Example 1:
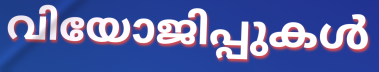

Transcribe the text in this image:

വിയോജിപ്പുകൾ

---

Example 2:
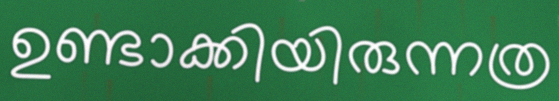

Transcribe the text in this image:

ഉണ്ടാക്കിയിരുന്നത്ര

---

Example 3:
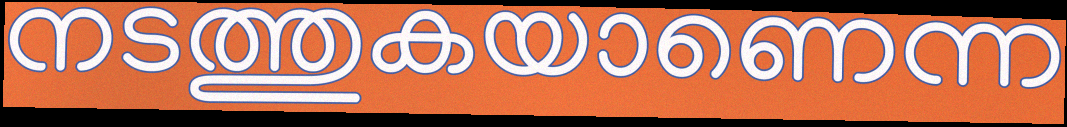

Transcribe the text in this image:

നടത്തുകയാണെന്ന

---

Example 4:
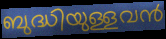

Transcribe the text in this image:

ബുദ്ധിയുള്ളവൻ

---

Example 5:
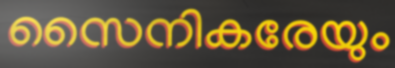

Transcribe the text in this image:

സൈനികരേയും